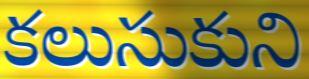
కలుసుకుని